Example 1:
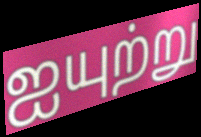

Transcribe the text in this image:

ஐயுற்று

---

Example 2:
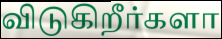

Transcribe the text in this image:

விடுகிறீர்களா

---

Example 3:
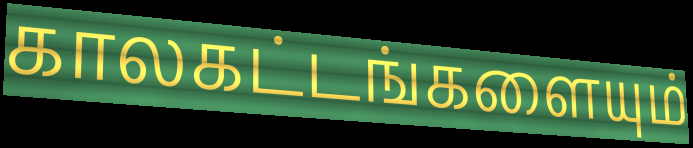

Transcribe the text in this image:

காலகட்டங்களையும்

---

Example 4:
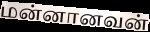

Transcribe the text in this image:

மன்னானவன்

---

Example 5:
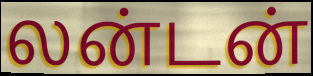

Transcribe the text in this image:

லன்டன்